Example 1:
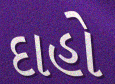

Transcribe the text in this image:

દાહો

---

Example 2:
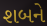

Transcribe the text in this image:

શબને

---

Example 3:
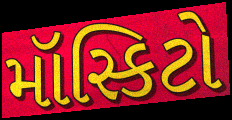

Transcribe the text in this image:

મૉસ્કિટો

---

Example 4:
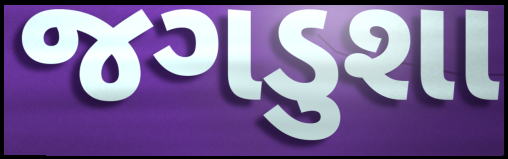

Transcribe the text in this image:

જગડુશા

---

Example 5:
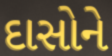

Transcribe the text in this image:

દાસોને